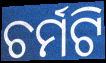
ଚର୍ମଟି